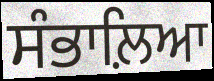
ਸੰਭਾਲ਼ਿਆ